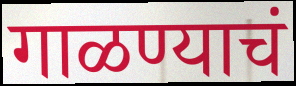
गाळण्याचं